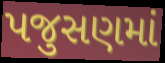
પજુસણમાં